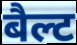
बैल्ट